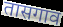
तासगाव